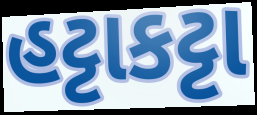
હટ્ટાકટ્ટા